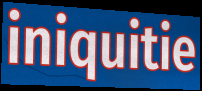
iniquitie